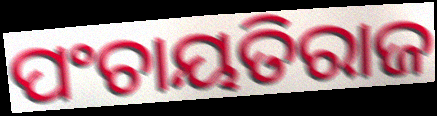
ପଂଚାୟତିରାଜ